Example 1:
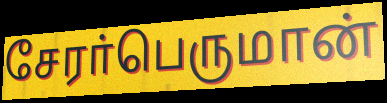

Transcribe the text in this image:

சேரர்பெருமான்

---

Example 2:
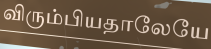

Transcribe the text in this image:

விரும்பியதாலேயே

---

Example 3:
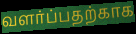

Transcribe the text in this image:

வளர்ப்பதற்காக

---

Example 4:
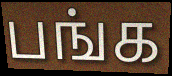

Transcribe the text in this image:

பங்க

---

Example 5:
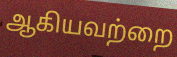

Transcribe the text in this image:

ஆகியவற்றை